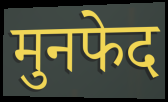
मुनफेद